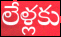
లేళ్లకు